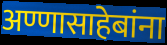
अण्णासाहेबांना